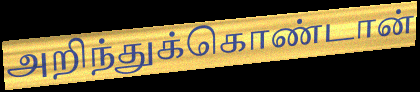
அறிந்துக்கொண்டான்